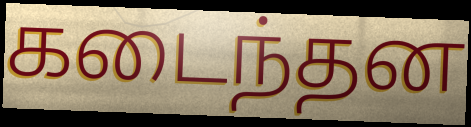
கடைந்தன